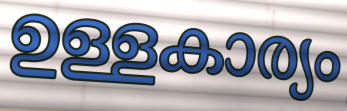
ഉള്ളകാര്യം